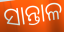
ସାନ୍ତାଳ